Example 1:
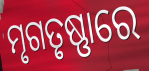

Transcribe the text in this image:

ମୃଗତୃଷ୍ଣାରେ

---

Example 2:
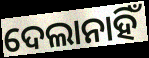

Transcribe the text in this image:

ଦେଲାନାହିଁ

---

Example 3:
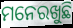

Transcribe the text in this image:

ମନେରଖୁଛି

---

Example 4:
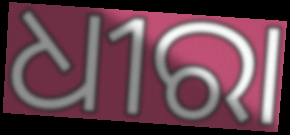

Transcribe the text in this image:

ଧୀରା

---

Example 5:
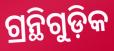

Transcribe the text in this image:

ଗ୍ରନ୍ଥିଗୁଡ଼ିକ